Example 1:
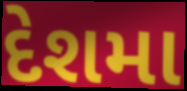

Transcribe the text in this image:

દેશમા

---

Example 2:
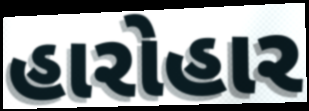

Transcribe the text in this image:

હારોહાર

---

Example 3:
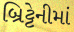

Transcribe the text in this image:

બ્રિટ્ટેનીમાં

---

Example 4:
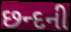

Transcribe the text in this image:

છન્દની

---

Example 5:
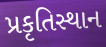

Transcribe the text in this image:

પ્રકૃતિસ્થાન